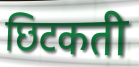
छिटकती